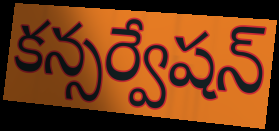
కన్సర్వేషన్